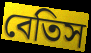
বেতিস